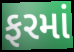
ફરમાં